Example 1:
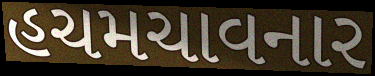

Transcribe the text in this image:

હચમચાવનાર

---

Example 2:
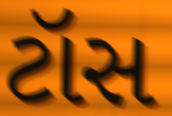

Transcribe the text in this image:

ટૉસ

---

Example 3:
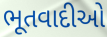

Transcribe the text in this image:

ભૂતવાદીઓ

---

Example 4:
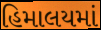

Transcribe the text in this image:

હિમાલયમાં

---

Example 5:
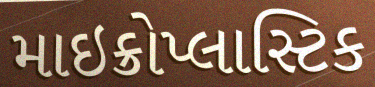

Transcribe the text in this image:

માઇક્રોપ્લાસ્ટિક